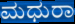
ಮಧುರಾ